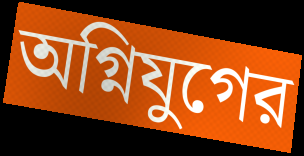
অগ্নিযুগের